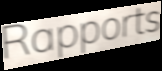
Rapports